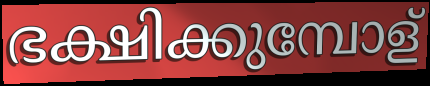
ഭക്ഷിക്കുമ്പോള്